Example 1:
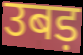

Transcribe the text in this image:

उबड़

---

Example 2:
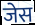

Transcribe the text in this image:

जेस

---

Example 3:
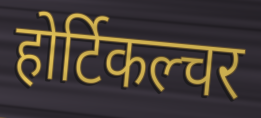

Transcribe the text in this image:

होर्टिकल्चर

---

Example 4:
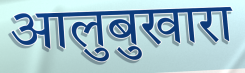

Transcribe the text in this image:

आलुबुखारा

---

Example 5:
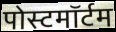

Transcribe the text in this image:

पोस्टमॉर्टम